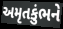
અમૃતકુંભને